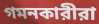
গমনকারীরা